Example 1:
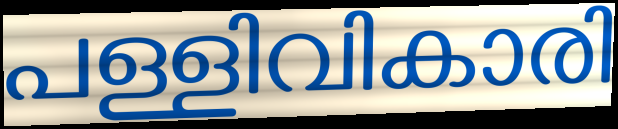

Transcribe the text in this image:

പള്ളിവികാരി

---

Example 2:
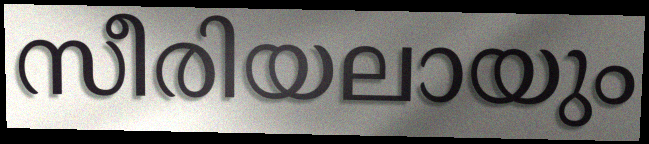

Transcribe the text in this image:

സീരിയലായും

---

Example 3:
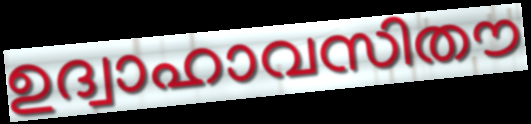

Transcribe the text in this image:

ഉദ്വാഹാവസിതൗ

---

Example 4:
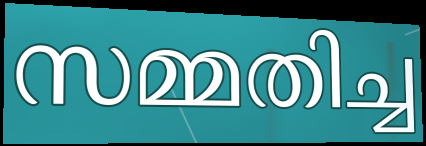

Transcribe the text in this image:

സമ്മതിച്ച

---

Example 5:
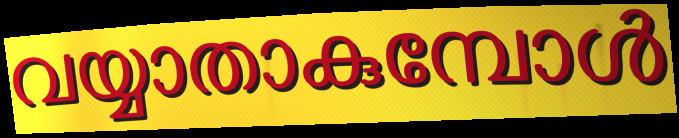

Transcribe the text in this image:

വയ്യാതാകുമ്പോൾ